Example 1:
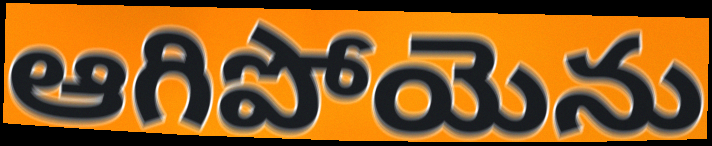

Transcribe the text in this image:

ఆగిపోయెను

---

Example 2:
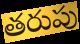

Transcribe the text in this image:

తరుపు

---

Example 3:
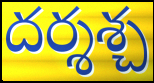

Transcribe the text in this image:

దర్శశ్చ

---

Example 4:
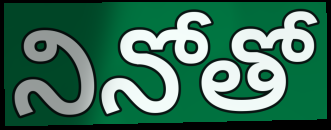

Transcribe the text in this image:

నినోతో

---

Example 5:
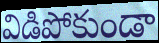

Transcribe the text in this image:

విడిపోకుండా